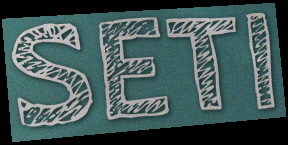
SETI